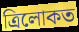
ত্ৰিলোকত